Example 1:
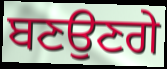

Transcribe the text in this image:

ਬਣਉਣਗੇ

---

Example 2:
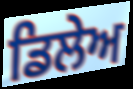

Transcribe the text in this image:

ਡਿਲੇਅ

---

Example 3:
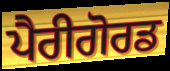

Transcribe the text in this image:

ਪੈਰੀਗੋਰਡ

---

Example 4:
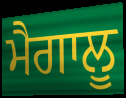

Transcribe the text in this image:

ਮੈਗਾਲੂ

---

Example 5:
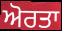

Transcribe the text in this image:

ਅੋਰਤਾ